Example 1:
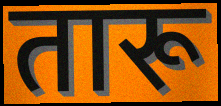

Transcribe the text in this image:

तारू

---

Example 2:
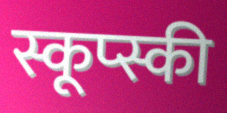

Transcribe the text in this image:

स्कूप्स्की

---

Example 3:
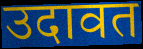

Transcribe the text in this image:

उदावत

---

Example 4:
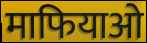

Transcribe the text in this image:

माफियाओ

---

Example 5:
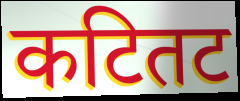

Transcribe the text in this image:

कटितट